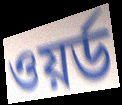
ওয়র্ড